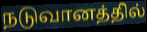
நடுவானத்தில்